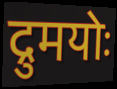
द्रुमयोः